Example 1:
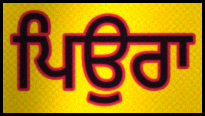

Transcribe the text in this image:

ਪਿਉਰਾ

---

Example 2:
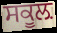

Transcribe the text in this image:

ਸਕੂਲ਼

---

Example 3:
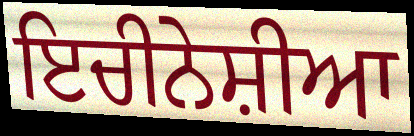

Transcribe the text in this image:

ਇਚੀਨੇਸ਼ੀਆ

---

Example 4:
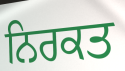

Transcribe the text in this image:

ਨਿਰਕਤ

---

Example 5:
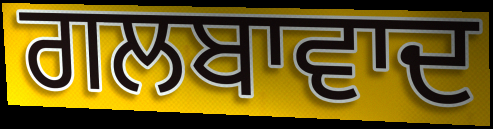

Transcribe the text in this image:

ਗਲਬਾਵਾਦ